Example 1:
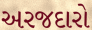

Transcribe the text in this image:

અરજદારો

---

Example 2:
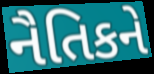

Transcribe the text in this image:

નૈતિકને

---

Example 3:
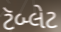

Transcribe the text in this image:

ટૅબ્લેટ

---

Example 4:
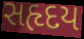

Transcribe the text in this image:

સહૃદય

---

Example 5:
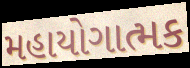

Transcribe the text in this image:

મહાયોગાત્મક